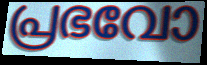
പ്രഭവോ